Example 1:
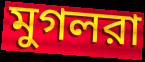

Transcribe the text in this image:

মুগলরা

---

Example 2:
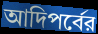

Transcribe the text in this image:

আদিপর্বের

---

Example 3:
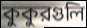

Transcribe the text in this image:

কুকুরগুলি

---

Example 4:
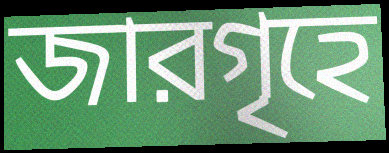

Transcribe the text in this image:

জারগৃহে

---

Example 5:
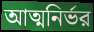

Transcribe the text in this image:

আত্মনির্ভর